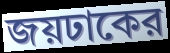
জয়ঢাকের